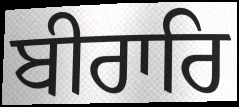
ਬੀਰਾਰਿ